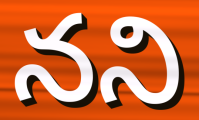
నని